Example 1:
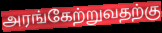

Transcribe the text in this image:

அரங்கேற்றுவதற்கு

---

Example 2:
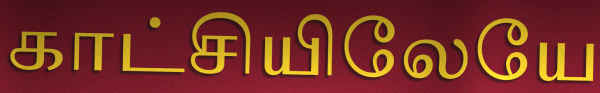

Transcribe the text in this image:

காட்சியிலேயே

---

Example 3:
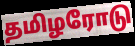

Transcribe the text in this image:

தமிழரோடு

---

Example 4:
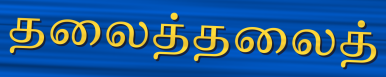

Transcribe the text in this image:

தலைத்தலைத்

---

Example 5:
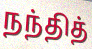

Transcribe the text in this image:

நந்தித்